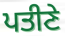
ਪਤੀਣੇ